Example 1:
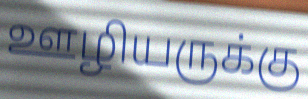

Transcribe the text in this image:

ஊழியருக்கு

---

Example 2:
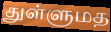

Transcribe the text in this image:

துள்ளுமத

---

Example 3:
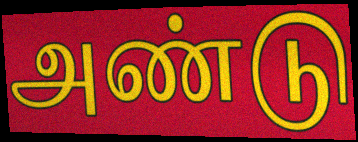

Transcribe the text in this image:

அண்டு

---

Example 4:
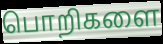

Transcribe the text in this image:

பொறிகளை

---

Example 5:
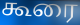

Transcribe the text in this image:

கூரை